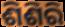
ଶିଶିରି